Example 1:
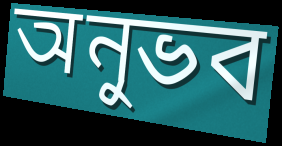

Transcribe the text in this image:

অনুভব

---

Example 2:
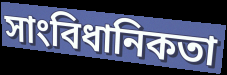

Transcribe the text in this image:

সাংবিধানিকতা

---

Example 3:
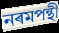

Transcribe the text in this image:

নৰমপন্থী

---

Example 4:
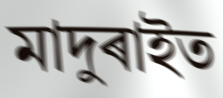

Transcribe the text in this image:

মাদুৰাইত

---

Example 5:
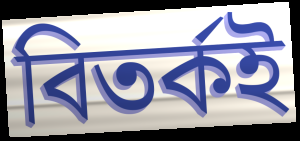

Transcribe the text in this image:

বিতৰ্কই